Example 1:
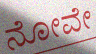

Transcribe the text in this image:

ನೋವೇ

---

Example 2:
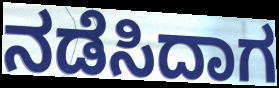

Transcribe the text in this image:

ನಡೆಸಿದಾಗ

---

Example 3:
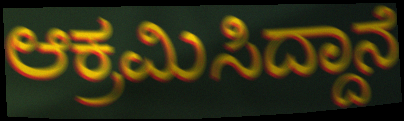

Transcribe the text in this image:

ಆಕ್ರಮಿಸಿದ್ದಾನೆ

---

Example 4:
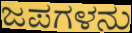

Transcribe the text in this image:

ಜಪಗಳನು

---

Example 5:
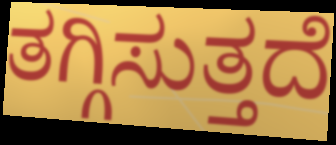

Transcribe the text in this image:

ತಗ್ಗಿಸುತ್ತದೆ